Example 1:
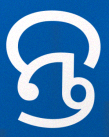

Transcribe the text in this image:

ନ୍ତ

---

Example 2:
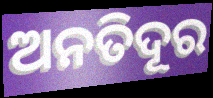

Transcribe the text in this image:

ଅନତିଦୂର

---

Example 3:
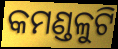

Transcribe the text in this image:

କମଣ୍ଡଳୁଟି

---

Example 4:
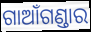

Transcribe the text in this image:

ଗାଆଁଗଣ୍ଡାର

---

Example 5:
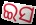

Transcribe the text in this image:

ଇସ